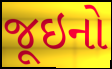
જૂઇનો